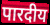
पारदीय